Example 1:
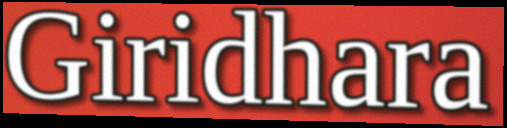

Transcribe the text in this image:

Giridhara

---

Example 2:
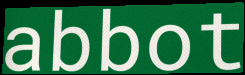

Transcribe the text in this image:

abbot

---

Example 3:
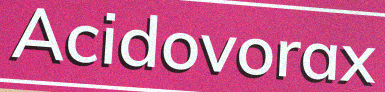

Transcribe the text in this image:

Acidovorax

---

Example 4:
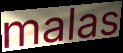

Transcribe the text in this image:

malas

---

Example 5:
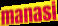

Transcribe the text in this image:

manasi